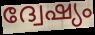
ദ്വേഷ്യം